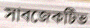
সাবজেকটিভ